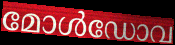
മോൾഡോവ